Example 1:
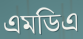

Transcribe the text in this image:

এমডিএ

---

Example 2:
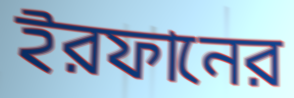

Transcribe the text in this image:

ইরফানের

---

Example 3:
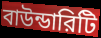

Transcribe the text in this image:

বাউন্ডারিটি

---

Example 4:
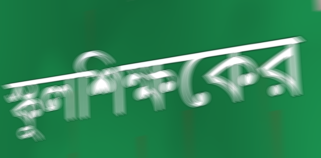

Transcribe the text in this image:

স্কুলশিক্ষকের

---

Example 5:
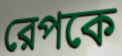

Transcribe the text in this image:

রেপকে